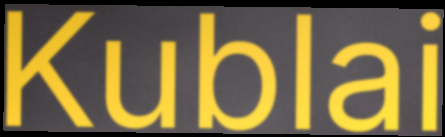
Kublai